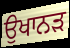
ਉਖਾਨੜ